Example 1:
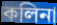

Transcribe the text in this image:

কলিনা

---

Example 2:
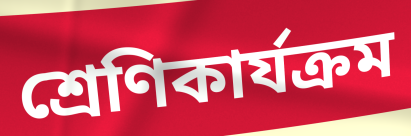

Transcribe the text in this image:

শ্রেণিকার্যক্রম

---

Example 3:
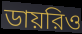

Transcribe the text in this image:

ডায়রিও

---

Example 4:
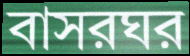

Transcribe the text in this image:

বাসরঘর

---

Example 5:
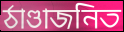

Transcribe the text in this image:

ঠাণ্ডাজনিত